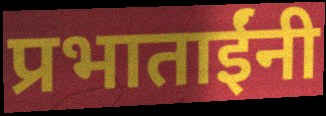
प्रभाताईंनी